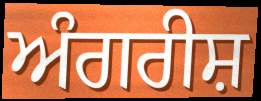
ਅੰਗਰੀਸ਼